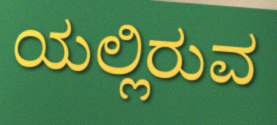
ಯಲ್ಲಿರುವ